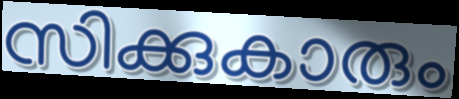
സിക്കുകാരും